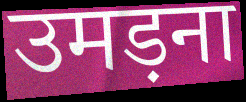
उमड़ना